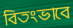
বিতংভাবে